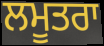
ਲਮੂਤਰਾ